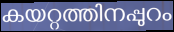
കയറ്റത്തിനപ്പുറം